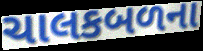
ચાલકબળના